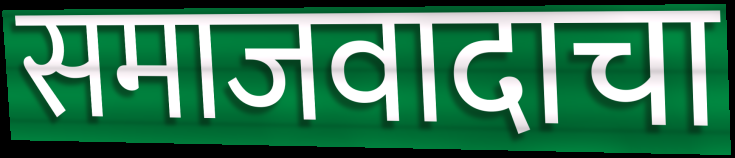
समाजवादाचा